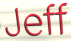
Jeff